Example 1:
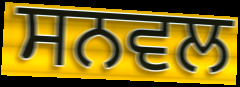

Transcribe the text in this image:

ਸਨਵਲ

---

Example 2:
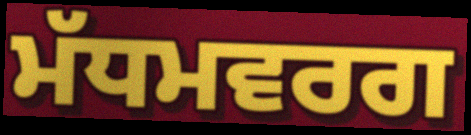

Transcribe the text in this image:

ਮੱਧਮਵਰਗ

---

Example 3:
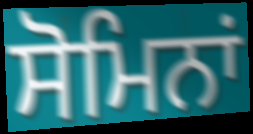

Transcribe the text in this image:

ਸੋਮਿਨਾਂ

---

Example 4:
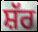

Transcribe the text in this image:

ਸ਼ੱਰ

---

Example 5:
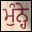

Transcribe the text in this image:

ਮੁੰਨ੍ਹੇ